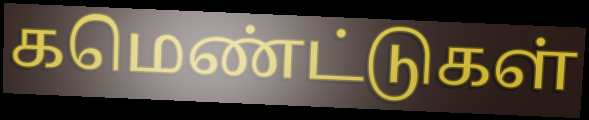
கமெண்ட்டுகள்